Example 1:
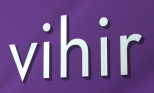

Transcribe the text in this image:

vihir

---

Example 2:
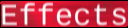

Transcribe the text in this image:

Effects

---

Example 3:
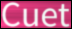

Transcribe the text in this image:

Cuet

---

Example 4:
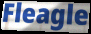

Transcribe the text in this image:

Fleagle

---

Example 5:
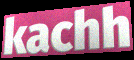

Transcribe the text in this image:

kachh